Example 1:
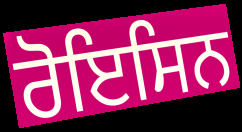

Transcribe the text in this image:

ਰੋਇਸਿਨ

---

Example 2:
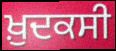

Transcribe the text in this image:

ਖ਼ੁਦਕਸੀ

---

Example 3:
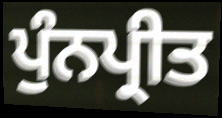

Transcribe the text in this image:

ਪੁੰਨਪ੍ਰੀਤ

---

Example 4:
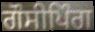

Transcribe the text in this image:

ਗੌਸੀਪਿੰਗ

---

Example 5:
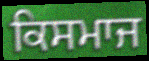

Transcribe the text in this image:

ਕਿਸਮਾਜ